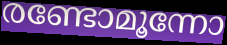
രണ്ടോമൂന്നോ